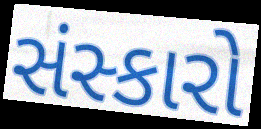
સંસ્કારો